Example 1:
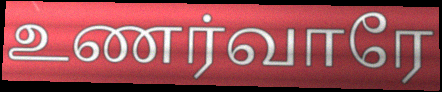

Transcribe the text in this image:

உணர்வாரே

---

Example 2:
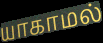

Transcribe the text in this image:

யாகாமல்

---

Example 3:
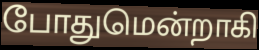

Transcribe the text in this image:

போதுமென்றாகி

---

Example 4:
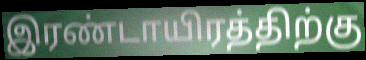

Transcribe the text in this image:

இரண்டாயிரத்திற்கு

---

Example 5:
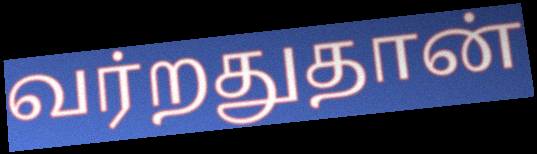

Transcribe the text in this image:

வர்றதுதான்